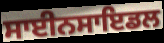
ਸਾਈਨਸਾਇਡਲ